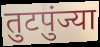
तुटपुंज्या